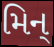
મિન્